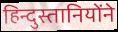
हिन्दुस्तानियोंने